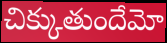
చిక్కుతుందేమో